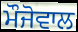
ਮੌਜੋਵਾਲ